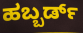
ಹಬ್ಬರ್ಡ್